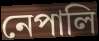
নেপালি